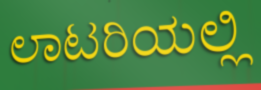
ಲಾಟರಿಯಲ್ಲಿ